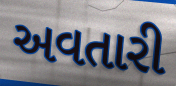
અવતારી